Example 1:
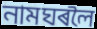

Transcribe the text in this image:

নামঘৰলৈ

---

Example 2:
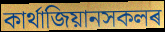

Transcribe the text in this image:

কাৰ্থাজিয়ানসকলৰ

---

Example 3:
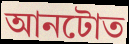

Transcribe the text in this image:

আনটোত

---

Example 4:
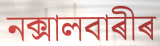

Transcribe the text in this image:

নক্সালবাৰীৰ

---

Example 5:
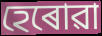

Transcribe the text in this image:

হেৰোৱা